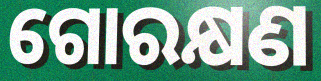
ଗୋରକ୍ଷଣ